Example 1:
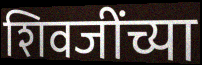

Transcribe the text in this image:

शिवजींच्या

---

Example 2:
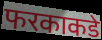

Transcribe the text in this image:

फरकाकडे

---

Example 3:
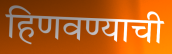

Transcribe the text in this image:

हिणवण्याची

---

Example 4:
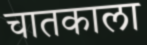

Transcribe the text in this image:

चातकाला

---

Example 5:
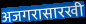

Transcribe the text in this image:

अजगरासारखी